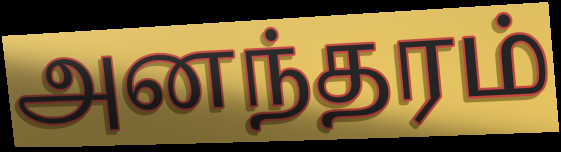
அனந்தரம்